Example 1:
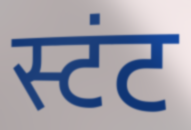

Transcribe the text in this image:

स्टंट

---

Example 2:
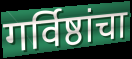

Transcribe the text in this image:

गर्विष्ठांचा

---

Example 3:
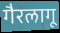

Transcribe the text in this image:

गैरलागू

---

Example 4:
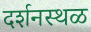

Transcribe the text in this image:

दर्शनस्थळ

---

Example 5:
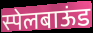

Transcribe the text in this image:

स्पेलबाऊंड